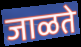
जाळते